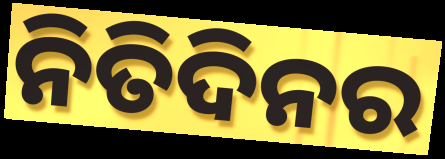
ନିତିଦିନର